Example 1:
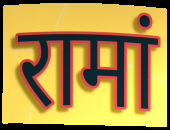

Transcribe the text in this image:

रामां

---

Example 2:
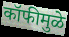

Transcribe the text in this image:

कॉफीमुळे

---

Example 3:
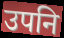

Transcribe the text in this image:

उपनि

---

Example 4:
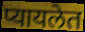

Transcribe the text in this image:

प्यायलेत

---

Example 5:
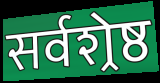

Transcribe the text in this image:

सर्वश्रेष्ठ